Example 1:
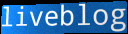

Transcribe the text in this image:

liveblog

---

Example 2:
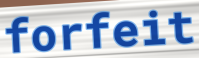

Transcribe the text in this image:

forfeit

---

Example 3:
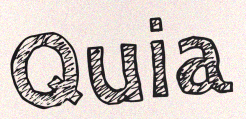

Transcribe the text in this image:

Quia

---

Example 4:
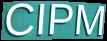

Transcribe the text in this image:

CIPM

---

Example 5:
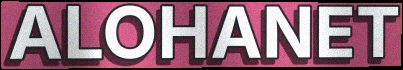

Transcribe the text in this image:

ALOHANET